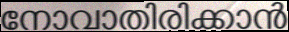
നോവാതിരിക്കാൻ